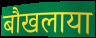
बौखलाया